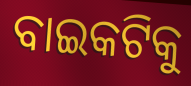
ବାଇକଟିକୁ